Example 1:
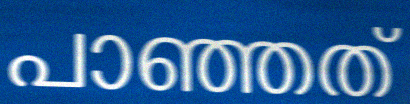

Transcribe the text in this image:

പാഞ്ഞത്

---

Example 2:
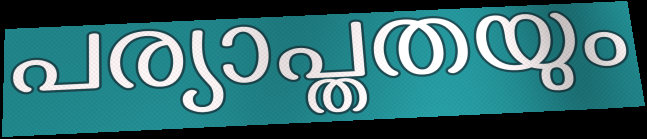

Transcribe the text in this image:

പര്യാപ്തതയും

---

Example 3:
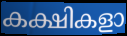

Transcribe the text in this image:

കക്ഷികളാ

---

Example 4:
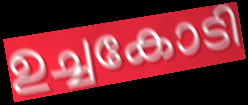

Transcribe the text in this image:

ഉച്ചകോടി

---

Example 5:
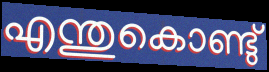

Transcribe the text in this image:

എന്തുകൊണ്ടു്